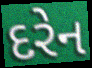
દરેન